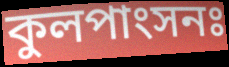
কুলপাংসনঃ